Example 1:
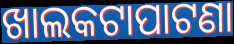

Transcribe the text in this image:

ଖାଲକଟାପାଟଣା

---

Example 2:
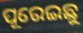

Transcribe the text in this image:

ପୂରେଇଛୁ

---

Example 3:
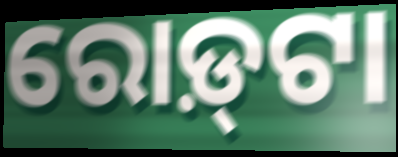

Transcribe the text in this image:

ରୋଡ଼୍‌ଟା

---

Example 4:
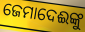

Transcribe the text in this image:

ଜେମାଦେଈଙ୍କୁ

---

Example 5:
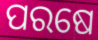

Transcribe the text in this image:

ପରଷେ